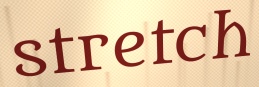
stretch